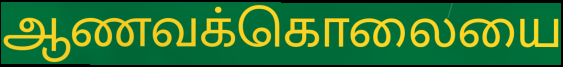
ஆணவக்கொலையை